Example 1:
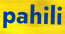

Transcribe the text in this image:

pahili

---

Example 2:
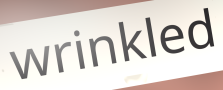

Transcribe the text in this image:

wrinkled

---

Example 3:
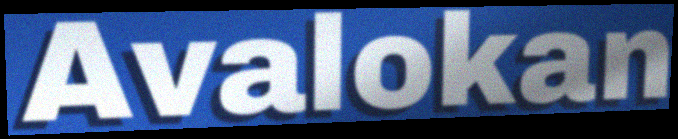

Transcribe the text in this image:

Avalokan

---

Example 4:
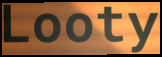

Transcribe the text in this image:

Looty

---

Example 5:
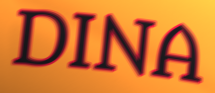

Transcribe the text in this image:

DINA